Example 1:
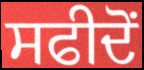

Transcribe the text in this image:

ਸਫੀਦੋਂ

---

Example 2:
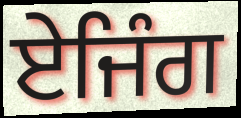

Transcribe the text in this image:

ਏਜਿੰਗ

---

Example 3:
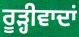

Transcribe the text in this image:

ਰੂੜ੍ਹੀਵਾਦਾਂ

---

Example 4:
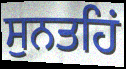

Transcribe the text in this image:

ਸੁਨਤਹਿਂ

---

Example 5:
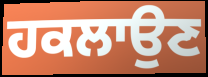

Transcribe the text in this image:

ਹਕਲਾਉਣ